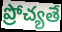
ప్రోచ్యతే